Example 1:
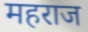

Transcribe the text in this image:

महराज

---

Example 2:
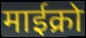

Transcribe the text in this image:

माईक्रो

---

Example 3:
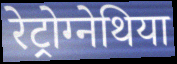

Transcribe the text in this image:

रेट्रोग्नेथिया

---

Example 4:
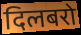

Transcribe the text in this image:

दिलबरो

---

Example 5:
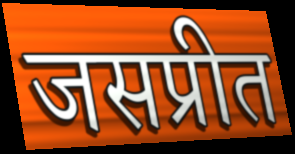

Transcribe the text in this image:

जसप्रीत